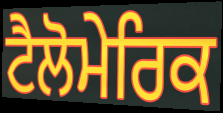
ਟੈਲੋਮੇਰਿਕ